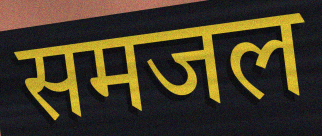
समजल